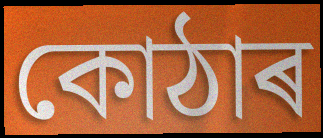
কোঠাৰ